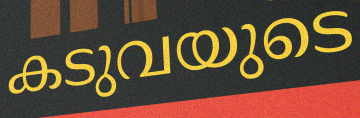
കടുവയുടെ